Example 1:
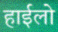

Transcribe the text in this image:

हाईलो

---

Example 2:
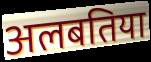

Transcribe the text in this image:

अलबतिया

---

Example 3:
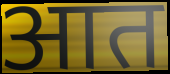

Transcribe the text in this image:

आत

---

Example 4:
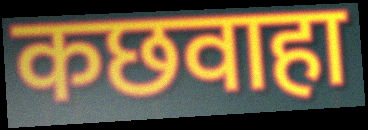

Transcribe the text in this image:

कछवाहा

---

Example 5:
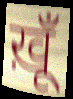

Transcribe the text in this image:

ख़ूँ